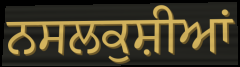
ਨਸਲਕੁਸ਼ੀਆਂ